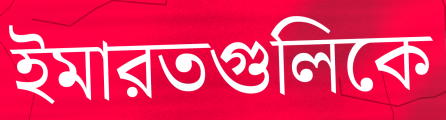
ইমারতগুলিকে